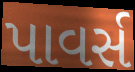
પાવર્સ